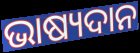
ଭାଷ୍ୟଦାନ